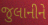
જુલાનીને